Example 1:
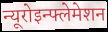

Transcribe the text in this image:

न्यूरोइन्फ्लेमेशन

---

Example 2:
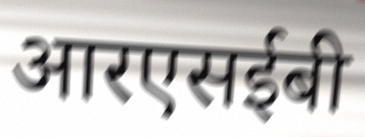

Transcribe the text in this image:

आरएसईबी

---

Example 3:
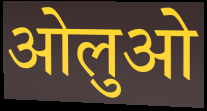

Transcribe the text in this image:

ओलुओ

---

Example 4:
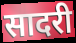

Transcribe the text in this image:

सादरी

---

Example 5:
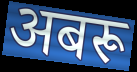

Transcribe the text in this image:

अबरू